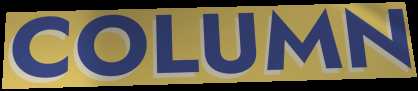
COLUMN